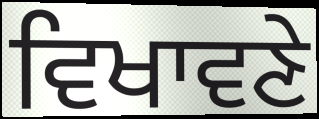
ਵਿਖਾਵਣੇ